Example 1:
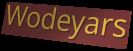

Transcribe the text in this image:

Wodeyars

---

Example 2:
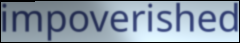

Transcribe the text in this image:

impoverished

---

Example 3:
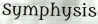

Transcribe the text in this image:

Symphysis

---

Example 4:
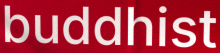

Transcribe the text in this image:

buddhist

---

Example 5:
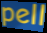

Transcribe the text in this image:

pell